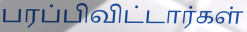
பரப்பிவிட்டார்கள்